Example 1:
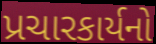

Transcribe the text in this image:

પ્રચારકાર્યનો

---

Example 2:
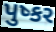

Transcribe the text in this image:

પુષ્કર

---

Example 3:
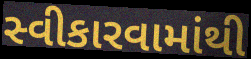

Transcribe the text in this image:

સ્વીકારવામાંથી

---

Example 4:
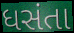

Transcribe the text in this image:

ધસંતા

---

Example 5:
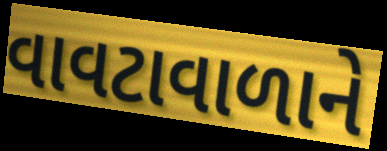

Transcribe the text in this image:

વાવટાવાળાને